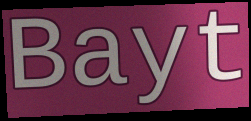
Bayt